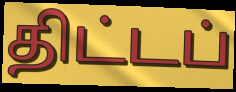
திட்டப்